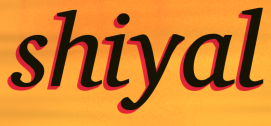
shiyal